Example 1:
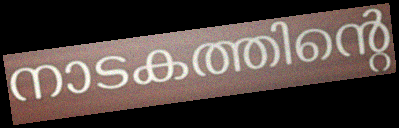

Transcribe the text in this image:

നാടകത്തിന്റെ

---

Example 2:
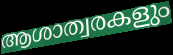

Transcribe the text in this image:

ആശാത്വരകളും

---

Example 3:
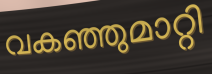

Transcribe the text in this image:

വകഞ്ഞുമാറ്റി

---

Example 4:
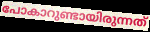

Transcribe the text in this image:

പോകാറുണ്ടായിരുന്നത്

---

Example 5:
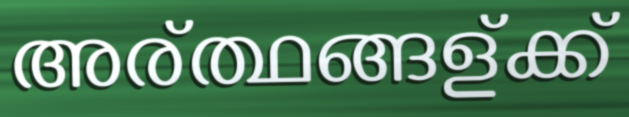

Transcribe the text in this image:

അര്ത്ഥങ്ങള്ക്ക്